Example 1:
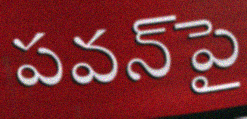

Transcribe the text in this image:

పవన్‌పై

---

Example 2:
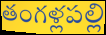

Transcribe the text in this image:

తంగళ్లపల్లి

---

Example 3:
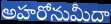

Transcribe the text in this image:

అహరోనుమీదా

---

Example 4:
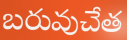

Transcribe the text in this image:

బరువుచేత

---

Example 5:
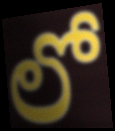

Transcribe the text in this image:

లో